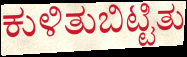
ಕುಳಿತುಬಿಟ್ಟಿತು